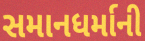
સમાનધર્માની